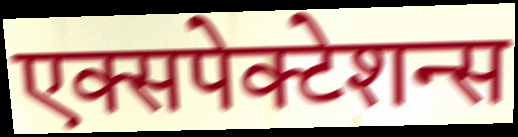
एक्सपेक्टेशन्स